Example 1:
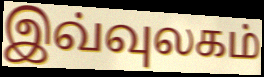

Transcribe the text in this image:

இவ்வுலகம்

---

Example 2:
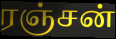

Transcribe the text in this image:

ரஞ்சன்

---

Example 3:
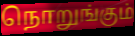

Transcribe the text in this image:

நொறுங்கும்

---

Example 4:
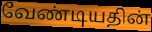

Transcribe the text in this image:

வேண்டியதின்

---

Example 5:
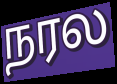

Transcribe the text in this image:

நரல